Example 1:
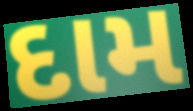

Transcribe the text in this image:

દામ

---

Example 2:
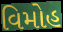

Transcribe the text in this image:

વિમોહ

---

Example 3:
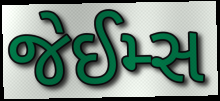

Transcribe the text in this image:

જેઈમ્સ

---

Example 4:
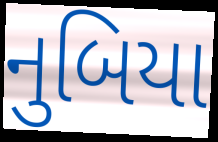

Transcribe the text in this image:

નુબિયા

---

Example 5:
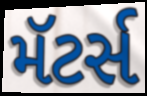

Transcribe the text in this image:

મૅટર્સ